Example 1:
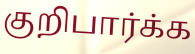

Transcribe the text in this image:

குறிபார்க்க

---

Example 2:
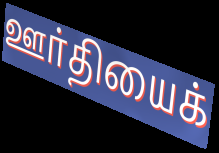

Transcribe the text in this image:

ஊர்தியைக்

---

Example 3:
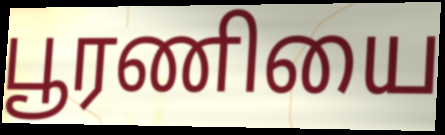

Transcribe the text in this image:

பூரணியை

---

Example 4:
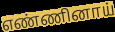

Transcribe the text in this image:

எண்ணினாய்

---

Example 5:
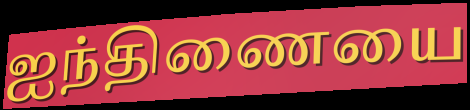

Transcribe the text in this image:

ஐந்திணையை